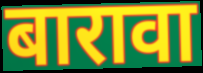
बारावा